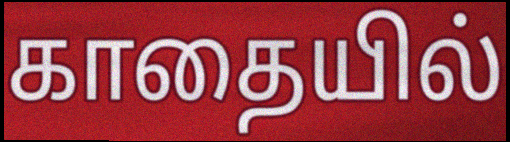
காதையில்